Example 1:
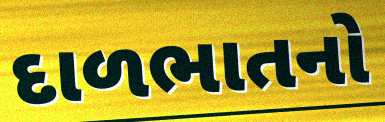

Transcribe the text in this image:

દાળભાતનો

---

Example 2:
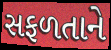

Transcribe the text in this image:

સફળતાને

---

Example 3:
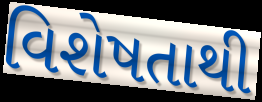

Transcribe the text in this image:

વિશેષતાથી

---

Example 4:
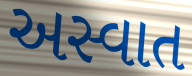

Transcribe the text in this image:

અસ્વાત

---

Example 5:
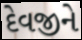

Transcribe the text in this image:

દેવજીને